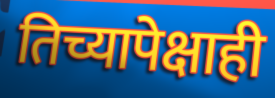
तिच्यापेक्षाही